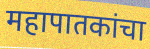
महापातकांचा